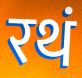
रथं